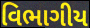
વિભાગીય